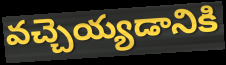
వచ్చెయ్యడానికి